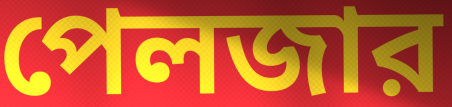
পেলজার